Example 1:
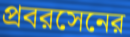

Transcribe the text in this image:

প্রবরসেনের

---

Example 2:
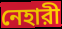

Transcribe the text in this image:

নেহারী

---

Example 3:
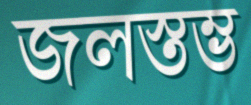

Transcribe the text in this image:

জলস্তম্ভ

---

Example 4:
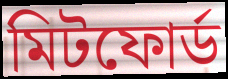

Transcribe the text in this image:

মিটফোর্ড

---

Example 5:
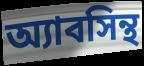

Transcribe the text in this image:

অ্যাবসিন্থ